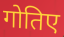
गोतिए